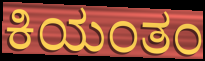
ಕಿಯಂತಂ